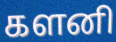
களனி